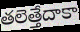
తలెత్తేదాకా